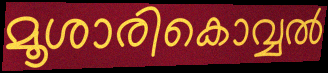
മൂശാരികൊവ്വൽ